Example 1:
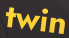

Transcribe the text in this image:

twin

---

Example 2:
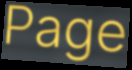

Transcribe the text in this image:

Page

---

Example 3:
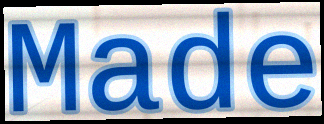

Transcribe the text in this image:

Made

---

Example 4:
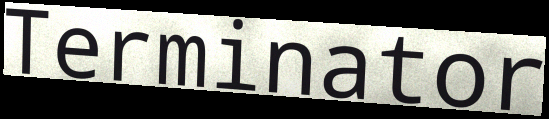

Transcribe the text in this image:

Terminator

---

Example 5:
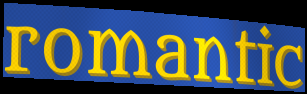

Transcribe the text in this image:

romantic